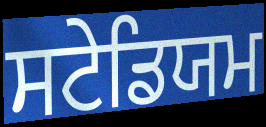
ਸਟੇਡਿਯਮ